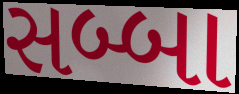
સબ્બા